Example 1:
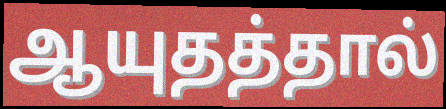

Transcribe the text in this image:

ஆயுதத்தால்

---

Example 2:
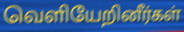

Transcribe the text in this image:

வெளியேறினீர்கள்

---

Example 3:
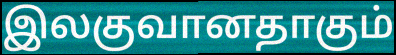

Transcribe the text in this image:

இலகுவானதாகும்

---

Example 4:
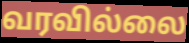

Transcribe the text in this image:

வரவில்லை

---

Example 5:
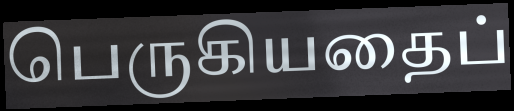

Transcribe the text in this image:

பெருகியதைப்